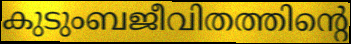
കുടുംബജീവിതത്തിന്റെ